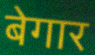
बेगार